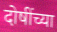
दोषींच्या